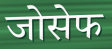
जोसेफ